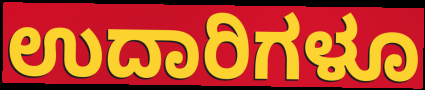
ಉದಾರಿಗಳೂ